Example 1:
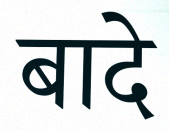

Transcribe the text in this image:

बादे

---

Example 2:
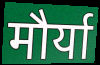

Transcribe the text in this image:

मौर्या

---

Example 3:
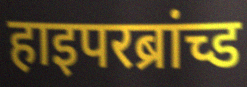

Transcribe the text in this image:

हाइपरब्रांच्ड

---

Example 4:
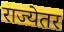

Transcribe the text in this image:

राज्येतर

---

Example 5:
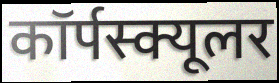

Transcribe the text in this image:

कॉर्पस्क्यूलर